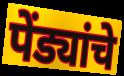
पेंड्यांचे